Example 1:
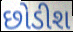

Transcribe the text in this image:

છોડીશ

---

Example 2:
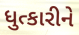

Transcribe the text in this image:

ધુત્કારીને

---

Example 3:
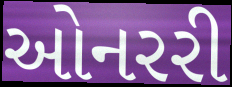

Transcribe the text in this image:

ઓનરરી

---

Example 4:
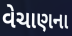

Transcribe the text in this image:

વેચાણના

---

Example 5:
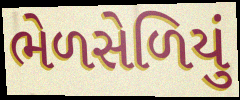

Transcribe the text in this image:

ભેળસેળિયું